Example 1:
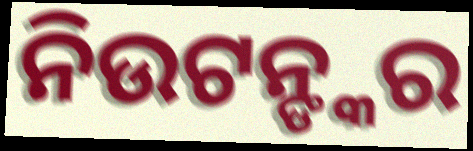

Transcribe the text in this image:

ନିଉଟନ୍ଙ୍କର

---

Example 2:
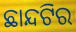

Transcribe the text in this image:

ଛାନ୍ଦଟିର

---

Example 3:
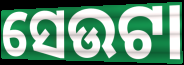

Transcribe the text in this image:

ସେଉଟା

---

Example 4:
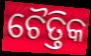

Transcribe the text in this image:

ଚୈତ୍ତିକ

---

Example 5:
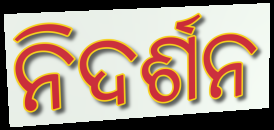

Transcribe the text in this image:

ନିଦର୍ଶନ